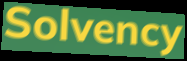
Solvency